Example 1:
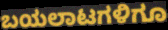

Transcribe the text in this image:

ಬಯಲಾಟಗಳಿಗೂ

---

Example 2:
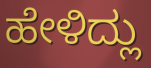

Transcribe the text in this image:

ಹೇಳಿದ್ಲು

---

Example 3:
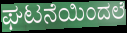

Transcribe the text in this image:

ಘಟನೆಯಿಂದಲೆ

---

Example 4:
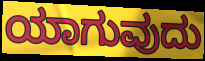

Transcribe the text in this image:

ಯಾಗುವುದು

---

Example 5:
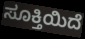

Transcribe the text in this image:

ಸೂಕ್ತಿಯಿದೆ